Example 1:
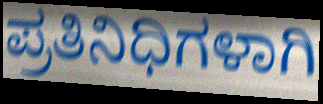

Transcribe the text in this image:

ಪ್ರತಿನಿಧಿಗಳಾಗಿ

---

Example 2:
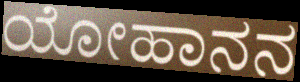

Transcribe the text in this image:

ಯೋಹಾನನ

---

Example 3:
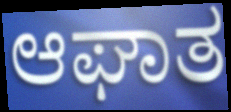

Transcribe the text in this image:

ಆಘಾತ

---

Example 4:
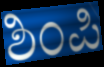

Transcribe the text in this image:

ಶಿಂಪಿ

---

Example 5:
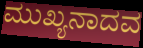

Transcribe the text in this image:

ಮುಖ್ಯನಾದವ